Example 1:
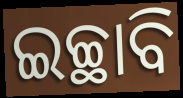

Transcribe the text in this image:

ଇଚ୍ଛାବି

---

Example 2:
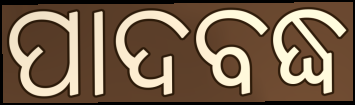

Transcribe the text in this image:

ପାଦବଦ୍ଧ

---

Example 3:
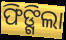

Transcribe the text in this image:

ଫିଙ୍ଗିଲା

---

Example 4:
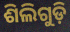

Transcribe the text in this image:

ଶିଲିଗୁଡ଼ି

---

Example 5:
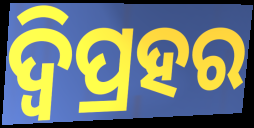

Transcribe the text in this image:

ଦ୍ବିପ୍ରହର